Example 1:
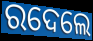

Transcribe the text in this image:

ରଦେଲେ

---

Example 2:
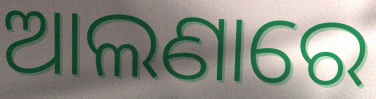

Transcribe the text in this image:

ଆଲଣାରେ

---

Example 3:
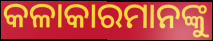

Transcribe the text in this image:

କଳାକାରମାନଙ୍କୁ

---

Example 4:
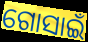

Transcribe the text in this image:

ଗୋସାଇଁ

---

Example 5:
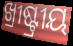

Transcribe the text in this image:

ଖ୍ରୀଷ୍ଟ୍ରୀୟ